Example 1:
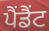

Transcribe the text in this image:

ਪੈਂਡੈਂਟ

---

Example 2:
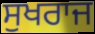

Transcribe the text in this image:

ਸੁਖਰਾਜ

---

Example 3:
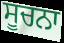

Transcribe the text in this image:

ਸੂਚਨਾ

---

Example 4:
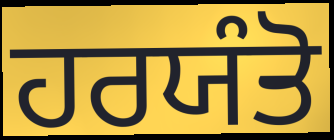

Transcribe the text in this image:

ਹਰਯੰਤੋ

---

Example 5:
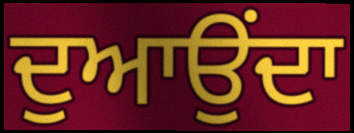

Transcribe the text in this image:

ਦੁਆਉਂਦਾ